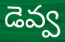
డెవ్వ